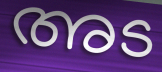
അട